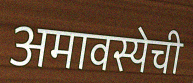
अमावस्येची